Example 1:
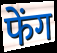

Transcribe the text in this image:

फेंग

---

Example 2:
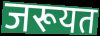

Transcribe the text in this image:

जरूयत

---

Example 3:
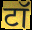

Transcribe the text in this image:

टॉ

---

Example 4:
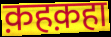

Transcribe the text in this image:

क़हक़हा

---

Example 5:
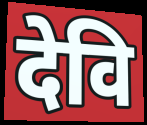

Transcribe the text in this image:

देवि